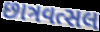
છાત્રવત્સલ